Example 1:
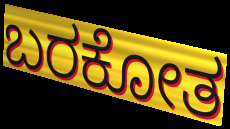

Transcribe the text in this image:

ಬರಕೋತ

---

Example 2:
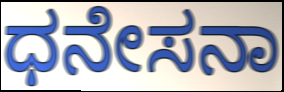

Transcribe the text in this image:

ಧನೇಸನಾ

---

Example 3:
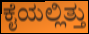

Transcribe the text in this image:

ಕೈಯಲ್ಲಿತ್ತು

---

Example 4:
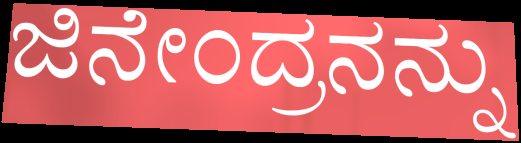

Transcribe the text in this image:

ಜಿನೇಂದ್ರನನ್ನು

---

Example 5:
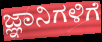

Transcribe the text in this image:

ಜ್ಞಾನಿಗಳಿಗೆ